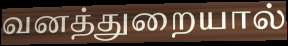
வனத்துறையால்